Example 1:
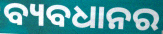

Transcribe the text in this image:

ବ୍ୟବଧାନର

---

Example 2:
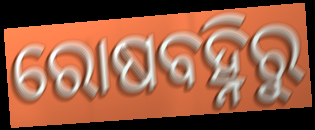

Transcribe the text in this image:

ରୋଷବହ୍ନିରୁ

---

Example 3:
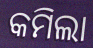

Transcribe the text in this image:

କମିଲା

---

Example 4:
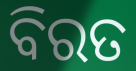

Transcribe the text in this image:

ବିରତ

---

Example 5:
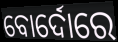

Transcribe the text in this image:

ବୋର୍ଦୋରେ